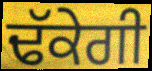
ਢੱਕੇਗੀ